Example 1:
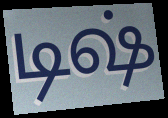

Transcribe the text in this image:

டிஷ்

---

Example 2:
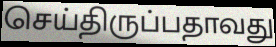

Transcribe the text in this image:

செய்திருப்பதாவது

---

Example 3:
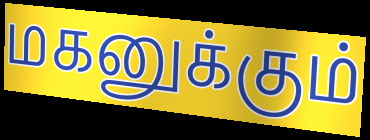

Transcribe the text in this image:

மகனுக்கும்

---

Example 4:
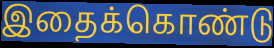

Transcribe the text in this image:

இதைக்கொண்டு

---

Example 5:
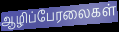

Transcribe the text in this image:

ஆழிப்பேரலைகள்